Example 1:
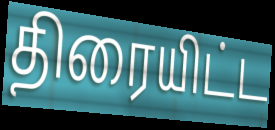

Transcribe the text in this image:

திரையிட்ட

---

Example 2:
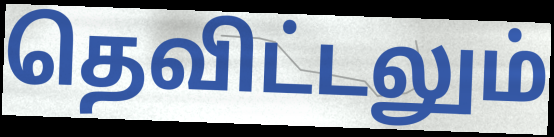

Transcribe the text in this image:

தெவிட்டலும்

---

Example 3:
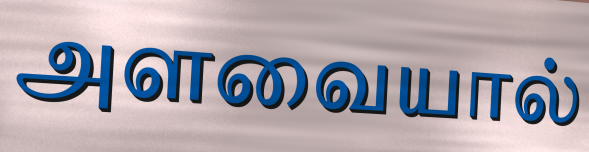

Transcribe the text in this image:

அளவையால்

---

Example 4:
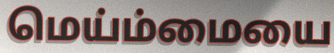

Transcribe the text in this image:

மெய்ம்மையை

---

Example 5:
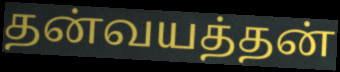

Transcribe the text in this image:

தன்வயத்தன்